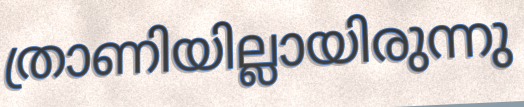
ത്രാണിയില്ലായിരുന്നു